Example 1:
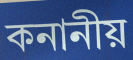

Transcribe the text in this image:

কনানীয়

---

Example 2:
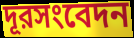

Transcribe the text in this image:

দূরসংবেদন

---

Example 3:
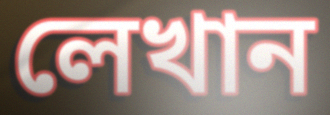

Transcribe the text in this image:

লেখান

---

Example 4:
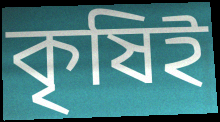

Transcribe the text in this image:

কৃষিই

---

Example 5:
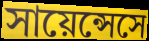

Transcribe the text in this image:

সায়েন্সেসে